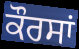
ਕੌਰਸਾਂ